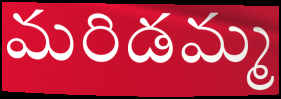
మరిడమ్మ